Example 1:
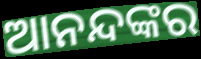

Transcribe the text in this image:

ଆନନ୍ଦଙ୍କର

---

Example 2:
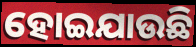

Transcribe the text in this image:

ହୋଇଯାଉଛି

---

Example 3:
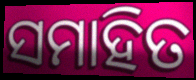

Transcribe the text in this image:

ସମାହିତ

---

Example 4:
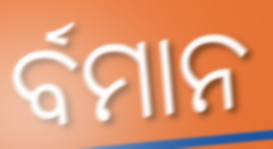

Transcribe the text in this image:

ର୍ବମାନ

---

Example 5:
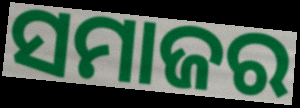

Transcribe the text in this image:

ସମାଜର